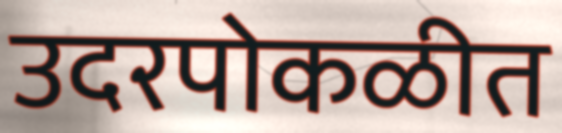
उदरपोकळीत